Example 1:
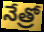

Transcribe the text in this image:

నేత్రో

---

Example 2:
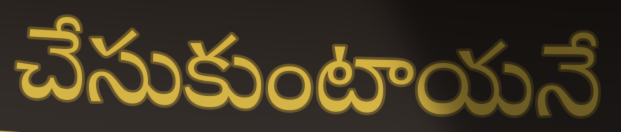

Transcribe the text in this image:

చేసుకుంటాయనే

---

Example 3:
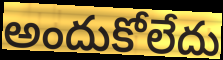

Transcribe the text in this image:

అందుకోలేదు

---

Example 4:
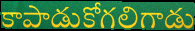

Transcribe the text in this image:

కాపాడుకోగలిగాడు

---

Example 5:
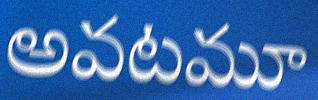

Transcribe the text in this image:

అవటమూ